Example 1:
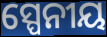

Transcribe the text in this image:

ସ୍ପେନୀୟ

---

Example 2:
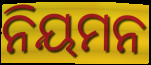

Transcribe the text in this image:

ନିୟମନ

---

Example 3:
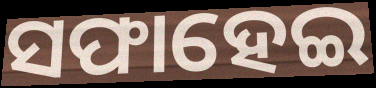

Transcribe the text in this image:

ସଫାହେଇ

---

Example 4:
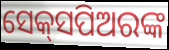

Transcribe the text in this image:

ସେକ୍‌ସପିଅରଙ୍କ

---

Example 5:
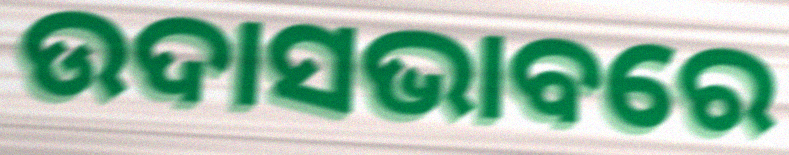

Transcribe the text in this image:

ଉଦାସଭାବରେ